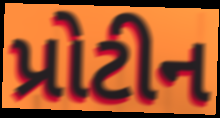
પ્રોટીન